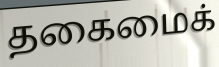
தகைமைக்